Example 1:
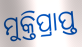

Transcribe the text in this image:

ମୁକ୍ତିପ୍ରାପ୍ତ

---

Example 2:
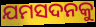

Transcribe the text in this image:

ଯମସଦନକୁ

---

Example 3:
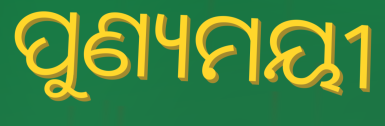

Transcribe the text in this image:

ପୁଣ୍ୟମୟୀ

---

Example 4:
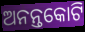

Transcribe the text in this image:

ଅନନ୍ତକୋଟି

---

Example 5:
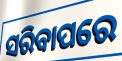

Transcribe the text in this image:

ସରିବାପରେ